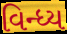
વિન્ધ્ય